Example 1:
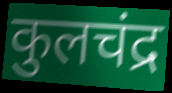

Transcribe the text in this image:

कुलचंद्र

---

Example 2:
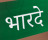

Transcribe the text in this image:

भारदे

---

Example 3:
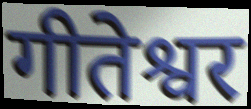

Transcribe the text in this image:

गीतेश्वर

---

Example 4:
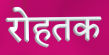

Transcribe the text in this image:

रोहतक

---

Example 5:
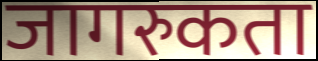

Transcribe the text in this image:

जागरुकता